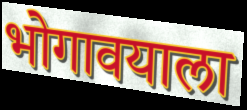
भोगावयाला